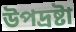
উপদ্রষ্টা